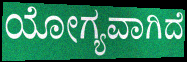
ಯೋಗ್ಯವಾಗಿದೆ